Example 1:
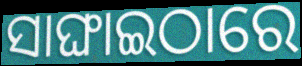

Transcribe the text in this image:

ସାଙ୍ଘାଇଠାରେ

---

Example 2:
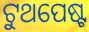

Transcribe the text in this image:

ଟୁଥପେଷ୍ଟ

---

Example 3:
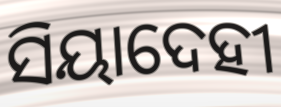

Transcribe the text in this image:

ସିୟାଦେହୀ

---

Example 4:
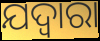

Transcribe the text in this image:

ଯଦ୍ୱାରା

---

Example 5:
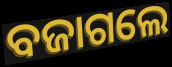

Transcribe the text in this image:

ବଜାଗଲେ